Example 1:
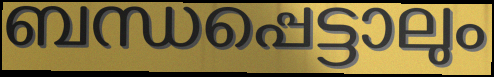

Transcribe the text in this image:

ബന്ധപ്പെട്ടാലും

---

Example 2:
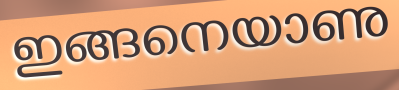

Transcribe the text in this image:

ഇങ്ങനെയാണു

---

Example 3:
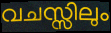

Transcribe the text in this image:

വചസ്സിലും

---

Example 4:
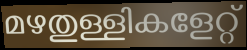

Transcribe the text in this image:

മഴതുള്ളികളേറ്റ്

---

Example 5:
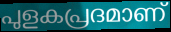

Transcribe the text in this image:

പുളകപ്രദമാണ്